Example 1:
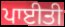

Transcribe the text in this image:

ਪਾਈਤੀ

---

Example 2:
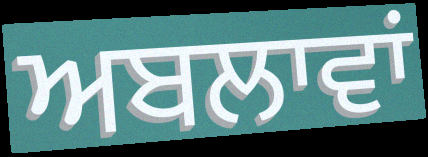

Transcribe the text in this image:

ਅਬਲਾਵਾਂ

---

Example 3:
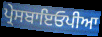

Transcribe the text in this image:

ਪ੍ਰੇਸਬਾਇਓਪੀਆ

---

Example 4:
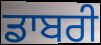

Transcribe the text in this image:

ਡਾਬਰੀ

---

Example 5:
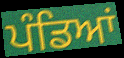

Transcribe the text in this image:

ਪੰਡਿਆਂ